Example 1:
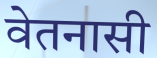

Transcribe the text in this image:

वेतनासी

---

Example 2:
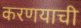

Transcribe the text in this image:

करणयाची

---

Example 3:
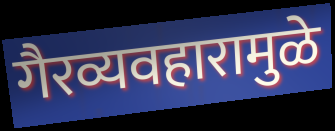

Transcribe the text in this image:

गैरव्यवहारामुळे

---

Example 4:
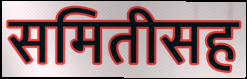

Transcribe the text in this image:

समितीसह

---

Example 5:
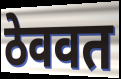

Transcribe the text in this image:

ठेववत